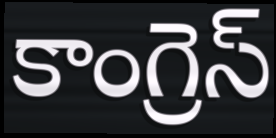
కాంగ్రెస్